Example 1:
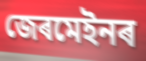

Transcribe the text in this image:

জেৰমেইনৰ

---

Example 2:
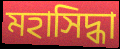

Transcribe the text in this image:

মহাসিদ্ধা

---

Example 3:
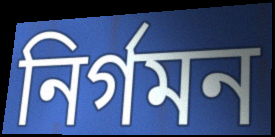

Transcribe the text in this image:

নিৰ্গমন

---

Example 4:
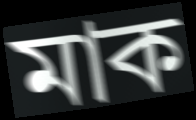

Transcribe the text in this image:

মাক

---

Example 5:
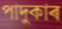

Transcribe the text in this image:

পাদুকাৰ